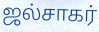
ஜல்சாகர்